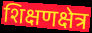
शिक्षणक्षेत्र